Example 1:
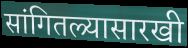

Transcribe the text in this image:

सांगितल्यासारखी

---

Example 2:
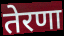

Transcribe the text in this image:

तेरणा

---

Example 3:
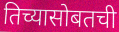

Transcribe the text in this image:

तिच्यासोबतची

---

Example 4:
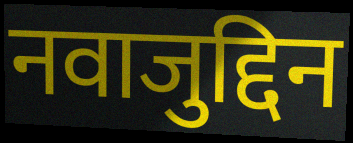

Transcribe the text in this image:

नवाजुद्दिन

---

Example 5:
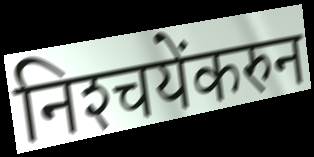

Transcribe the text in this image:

निश्चयेंकरुन